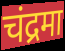
चंद्रमा